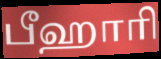
பீஹாரி